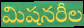
మిషనరీల